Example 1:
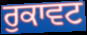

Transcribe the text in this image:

ਰੁਕਾਵਟ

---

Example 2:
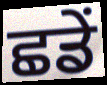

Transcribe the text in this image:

ਛਡੇਂ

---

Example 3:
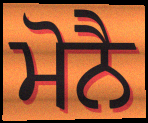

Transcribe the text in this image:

ਮੋਨੈ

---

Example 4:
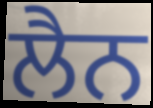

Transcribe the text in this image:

ਲੈਨ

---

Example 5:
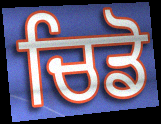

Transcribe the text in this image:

ਚਿਡੋ